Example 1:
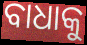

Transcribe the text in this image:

ବାଧାକୁ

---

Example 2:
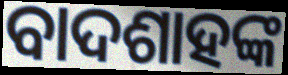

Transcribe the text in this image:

ବାଦଶାହଙ୍କ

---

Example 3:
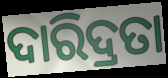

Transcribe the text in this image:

ଦାରିଦ୍ରତା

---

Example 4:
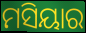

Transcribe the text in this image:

ମସିୟାର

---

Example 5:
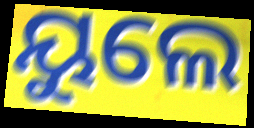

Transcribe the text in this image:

ୟୁଲେ